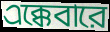
এক্কেবারে